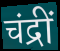
चंद्रीं